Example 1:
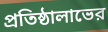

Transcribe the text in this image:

প্রতিষ্ঠালাভের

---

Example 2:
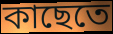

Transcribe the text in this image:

কাছেতে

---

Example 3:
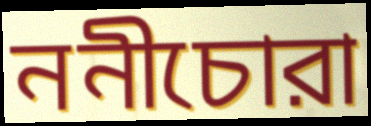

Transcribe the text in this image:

ননীচোরা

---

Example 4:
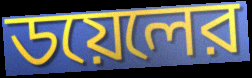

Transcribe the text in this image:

ডয়েলের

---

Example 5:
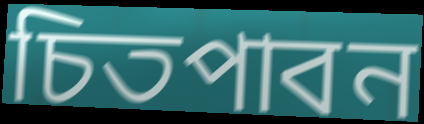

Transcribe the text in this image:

চিতপাবন